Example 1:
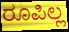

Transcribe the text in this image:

ರೂಪಿಲ್ಲ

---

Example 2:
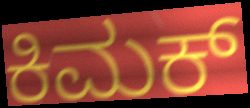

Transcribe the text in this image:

ಕಿಮಕ್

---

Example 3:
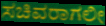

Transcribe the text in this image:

ಸಚಿವರಾಗಲೀ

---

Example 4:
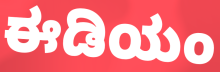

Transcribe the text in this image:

ಈಡಿಯಂ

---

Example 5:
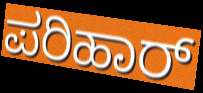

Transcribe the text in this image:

ಪರಿಹಾರ್